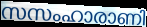
സസംഹാരാണി